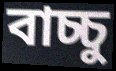
বাচ্চু